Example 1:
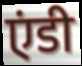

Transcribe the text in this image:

एंडी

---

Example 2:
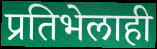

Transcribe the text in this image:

प्रतिभेलाही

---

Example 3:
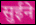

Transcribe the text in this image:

सुईने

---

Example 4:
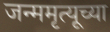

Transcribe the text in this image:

जन्ममृत्यूच्या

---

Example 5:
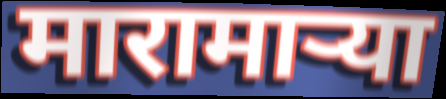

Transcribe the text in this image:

मारामार्‍या